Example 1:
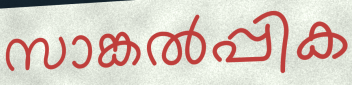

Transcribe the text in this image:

സാങ്കൽപ്പിക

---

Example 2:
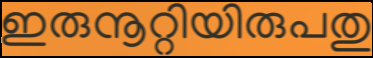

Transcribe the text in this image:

ഇരുനൂറ്റിയിരുപതു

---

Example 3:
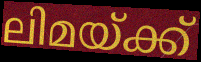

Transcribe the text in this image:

ലിമയ്ക്ക്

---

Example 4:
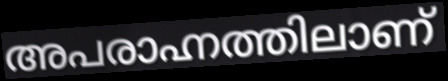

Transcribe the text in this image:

അപരാഹ്നത്തിലാണ്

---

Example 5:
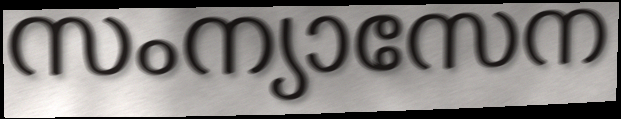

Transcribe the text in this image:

സംന്യാസേന